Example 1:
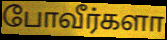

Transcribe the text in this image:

போவீர்களா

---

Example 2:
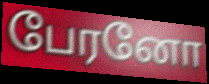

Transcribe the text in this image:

பேரனோ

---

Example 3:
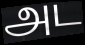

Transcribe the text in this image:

அட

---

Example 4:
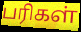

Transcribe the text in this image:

பரிகள்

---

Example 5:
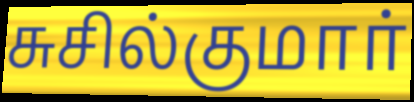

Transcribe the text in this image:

சுசில்குமார்